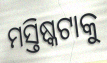
ମସ୍ତିଷ୍କଟାକୁ